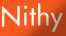
Nithy